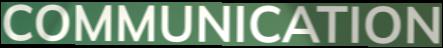
COMMUNICATION